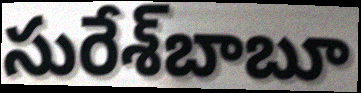
సురేశ్‌బాబూ